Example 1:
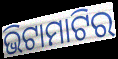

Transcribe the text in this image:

ଭିଟାମାଟିର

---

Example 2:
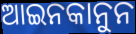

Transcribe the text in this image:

ଆଇନକାନୁନ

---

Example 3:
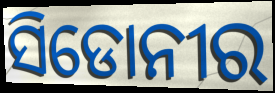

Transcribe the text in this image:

ସିଡୋନୀର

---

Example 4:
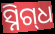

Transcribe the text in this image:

ସ୍ନିଗ୍‍ଧ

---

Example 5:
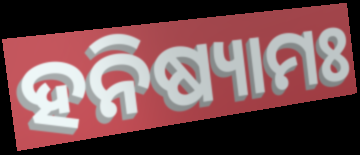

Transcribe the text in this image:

ହନିଷ୍ୟାମଃ